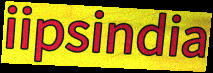
iipsindia